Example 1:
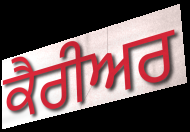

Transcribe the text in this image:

ਕੈਰੀਅਰ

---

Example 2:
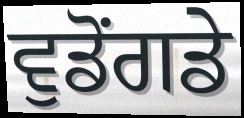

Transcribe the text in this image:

ਵੁਡੋਂਗਡੇ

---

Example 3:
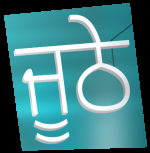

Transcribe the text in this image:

ਜੂਠੇ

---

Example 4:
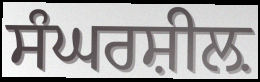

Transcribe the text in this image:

ਸੰਘਰਸ਼ੀਲ਼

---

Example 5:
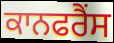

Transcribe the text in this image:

ਕਾਨਫਰੈਂਸ